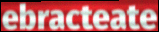
ebracteate